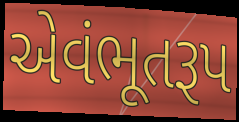
એવંભૂતરૂપ